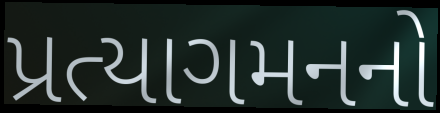
પ્રત્યાગમનનો